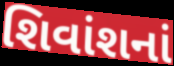
શિવાંશનાં